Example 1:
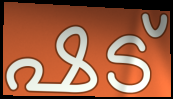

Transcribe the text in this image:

ഷട്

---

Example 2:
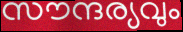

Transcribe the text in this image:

സൗന്ദര്യവും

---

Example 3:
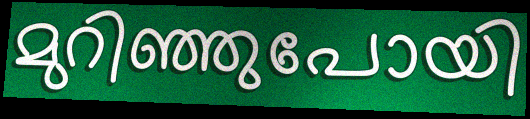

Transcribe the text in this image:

മുറിഞ്ഞുപോയി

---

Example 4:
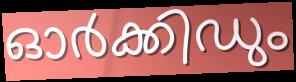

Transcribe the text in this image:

ഓർക്കിഡും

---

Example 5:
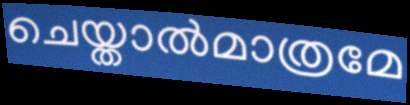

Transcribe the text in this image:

ചെയ്താൽമാത്രമേ